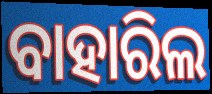
ବାହାରିଲ